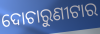
ଦୋଚାରୁଣୀଟାର